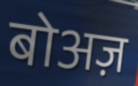
बोअज़